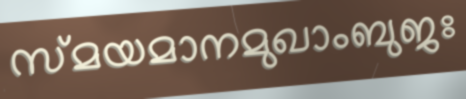
സ്മയമാനമുഖാംബുജഃ